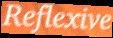
Reflexive